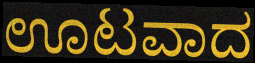
ಊಟವಾದ